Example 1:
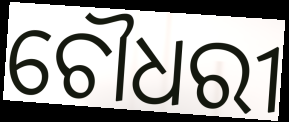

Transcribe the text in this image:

ଚୌଧରୀ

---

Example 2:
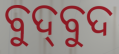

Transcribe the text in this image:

ବୁଦ୍‍ବୁଦ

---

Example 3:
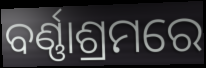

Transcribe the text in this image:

ବର୍ଣ୍ଣାଶ୍ରମରେ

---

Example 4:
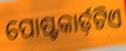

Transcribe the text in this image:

ପୋଷ୍ଟକାର୍ଡ଼ଟିଏ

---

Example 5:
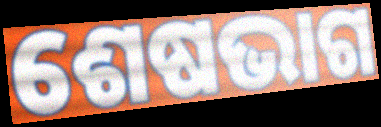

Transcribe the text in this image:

ଶେଷଭାଗ